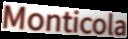
Monticola